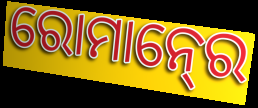
ରୋମାନ୍‍ରେ